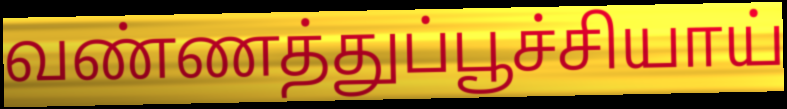
வண்ணத்துப்பூச்சியாய்